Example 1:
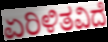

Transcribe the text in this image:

ಏರಿಳಿತವಿದೆ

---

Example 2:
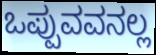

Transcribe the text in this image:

ಒಪ್ಪುವವನಲ್ಲ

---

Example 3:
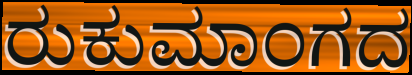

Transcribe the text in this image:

ರುಕುಮಾಂಗದ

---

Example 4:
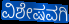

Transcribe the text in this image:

ವಿಶೇಷವಗಿ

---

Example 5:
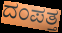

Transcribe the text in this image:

ದಂಪತ್ತ